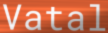
Vatal